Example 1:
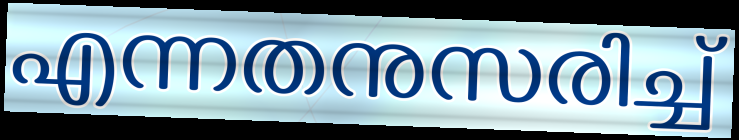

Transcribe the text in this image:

എന്നതനുസരിച്ച്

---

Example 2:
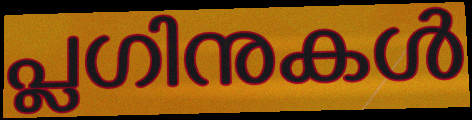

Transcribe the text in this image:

പ്ലഗിനുകൾ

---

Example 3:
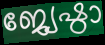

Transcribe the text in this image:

ജ്യേഷ്ഠാ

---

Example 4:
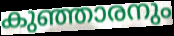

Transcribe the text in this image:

കുഞ്ഞാരനും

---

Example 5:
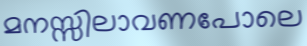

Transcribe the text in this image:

മനസ്സിലാവണപോലെ